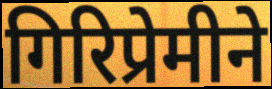
गिरिप्रेमीने